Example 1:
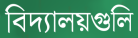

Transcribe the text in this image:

বিদ্যালয়গুলি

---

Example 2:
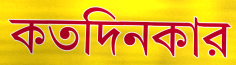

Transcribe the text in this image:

কতদিনকার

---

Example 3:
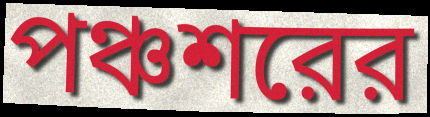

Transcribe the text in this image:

পঞ্চশরের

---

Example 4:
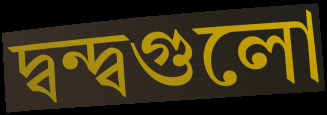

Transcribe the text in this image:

দ্বন্দ্বগুলো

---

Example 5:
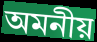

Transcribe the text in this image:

অমনীয়